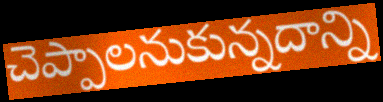
చెప్పాలనుకున్నదాన్ని